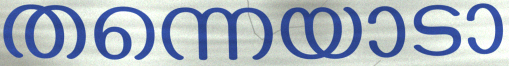
തന്നെയാടാ